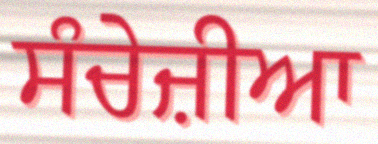
ਸੰਚੇਜ਼ੀਆ